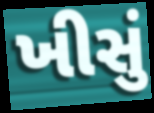
ખીસું